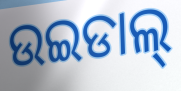
ଉଇଡାଲ୍